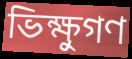
ভিক্ষুগণ